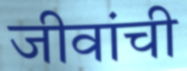
जीवांची